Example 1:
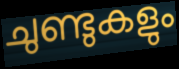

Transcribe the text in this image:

ചുണ്ടുകളും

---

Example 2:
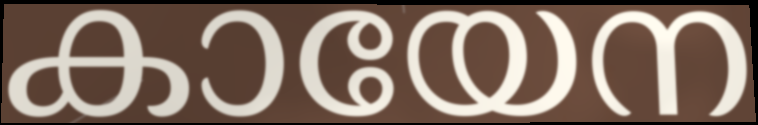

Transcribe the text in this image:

കായേന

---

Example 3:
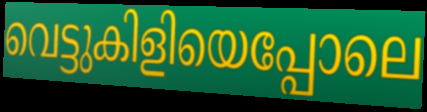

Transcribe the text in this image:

വെട്ടുകിളിയെപ്പോലെ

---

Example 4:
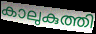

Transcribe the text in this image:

കാലുകുത്തി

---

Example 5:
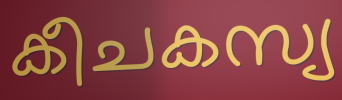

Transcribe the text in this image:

കീചകസ്യ